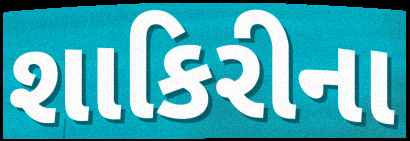
શાકિરીના